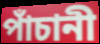
পাঁচানী